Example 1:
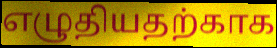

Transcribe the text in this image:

எழுதியதற்காக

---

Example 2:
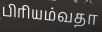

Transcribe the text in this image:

பிரியம்வதா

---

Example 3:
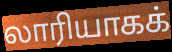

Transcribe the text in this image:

லாரியாகக்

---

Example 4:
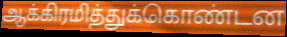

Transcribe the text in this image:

ஆக்கிரமித்துக்கொண்டன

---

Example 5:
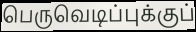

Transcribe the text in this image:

பெருவெடிப்புக்குப்